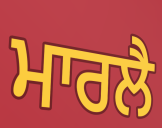
ਮਾਰਲੈ